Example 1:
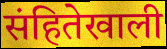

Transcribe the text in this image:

संहितेखाली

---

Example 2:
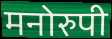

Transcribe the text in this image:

मनोरुपी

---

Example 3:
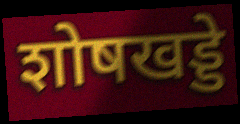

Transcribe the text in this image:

शोषखड्डे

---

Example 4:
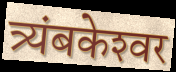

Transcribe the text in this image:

त्र्यंबकेश्वर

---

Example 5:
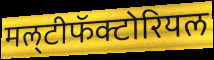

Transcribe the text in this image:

मल्टीफॅक्टोरियल